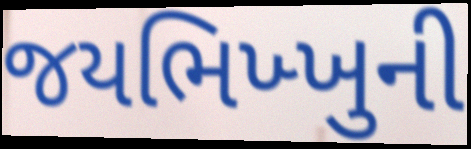
જયભિખ્ખુની